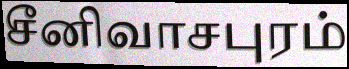
சீனிவாசபுரம்